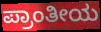
ಪ್ರಾಂತೀಯ